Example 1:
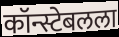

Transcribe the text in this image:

कॉन्स्टेबलला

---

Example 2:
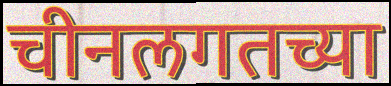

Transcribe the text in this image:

चीनलगतच्या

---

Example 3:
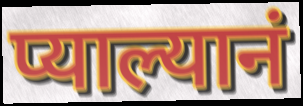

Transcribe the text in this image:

प्याल्यानं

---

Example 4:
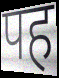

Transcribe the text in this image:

पह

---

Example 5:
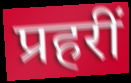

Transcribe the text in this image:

प्रहरीं